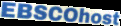
EBSCOhost